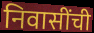
निवासींची